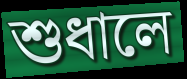
শুধালে